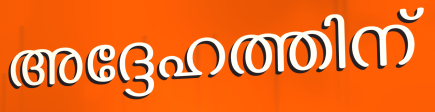
അദ്ദേഹത്തിന്